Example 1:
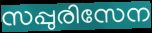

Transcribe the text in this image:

സപ്പുരിസേന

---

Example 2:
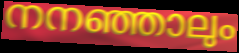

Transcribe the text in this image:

നനഞ്ഞാലും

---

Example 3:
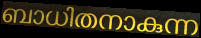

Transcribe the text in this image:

ബാധിതനാകുന്ന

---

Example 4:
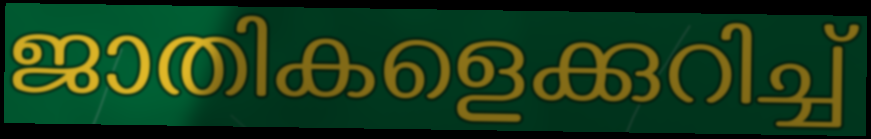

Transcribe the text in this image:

ജാതികളെക്കുറിച്ച്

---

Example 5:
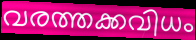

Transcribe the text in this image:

വരത്തക്കവിധം